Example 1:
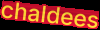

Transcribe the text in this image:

chaldees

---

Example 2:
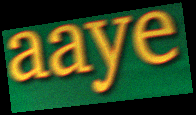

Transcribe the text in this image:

aaye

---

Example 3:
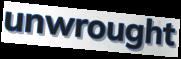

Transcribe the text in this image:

unwrought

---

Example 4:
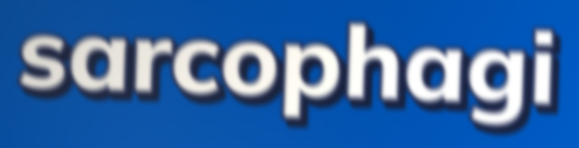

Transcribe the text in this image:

sarcophagi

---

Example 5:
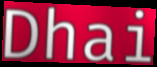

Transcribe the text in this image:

Dhai